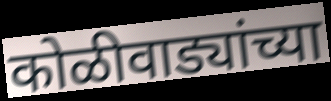
कोळीवाड्यांच्या